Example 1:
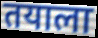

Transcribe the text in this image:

तयाला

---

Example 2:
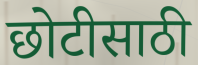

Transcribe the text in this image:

छोटीसाठी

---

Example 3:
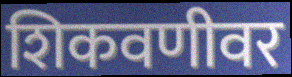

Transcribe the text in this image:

शिकवणीवर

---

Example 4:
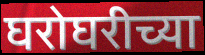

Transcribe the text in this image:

घरोघरीच्या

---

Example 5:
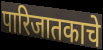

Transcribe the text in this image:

पारिजातकाचे